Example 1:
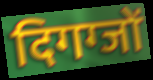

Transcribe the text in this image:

दिगग्जों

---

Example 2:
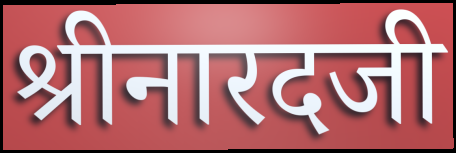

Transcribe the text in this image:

श्रीनारदजी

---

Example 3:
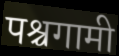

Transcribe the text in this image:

पश्चगामी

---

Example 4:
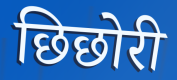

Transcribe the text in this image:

छिछोरी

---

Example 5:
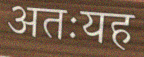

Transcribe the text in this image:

अतःयह